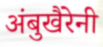
अंबुखैरेनी